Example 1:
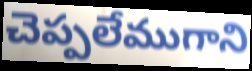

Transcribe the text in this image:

చెప్పలేముగాని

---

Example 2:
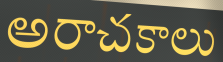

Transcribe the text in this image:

అరాచకాలు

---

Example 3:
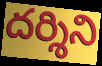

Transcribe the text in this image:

దర్శిని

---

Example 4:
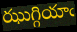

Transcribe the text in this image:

ఝుగ్గియాఁ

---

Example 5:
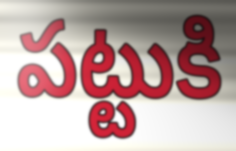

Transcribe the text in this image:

పట్టుకి